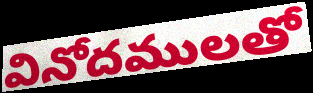
వినోదములతో